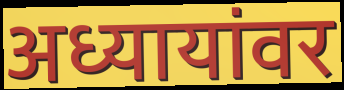
अध्यायांवर